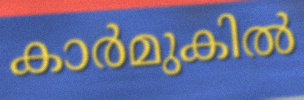
കാർമുകിൽ